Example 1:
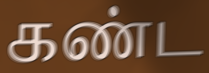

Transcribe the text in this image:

கண்ட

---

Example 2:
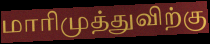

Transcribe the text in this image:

மாரிமுத்துவிற்கு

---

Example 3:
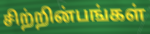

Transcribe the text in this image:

சிற்றின்பங்கள்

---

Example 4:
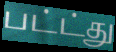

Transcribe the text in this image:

பட்ட்து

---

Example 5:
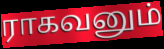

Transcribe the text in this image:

ராகவனும்